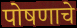
पोषणाचे